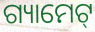
ଗ୍ୟାମେଟ୍